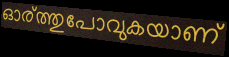
ഓര്ത്തുപോവുകയാണ്